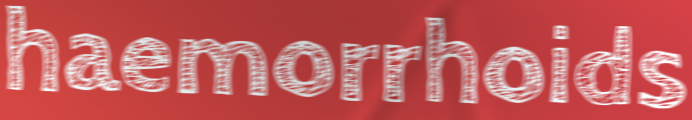
haemorrhoids